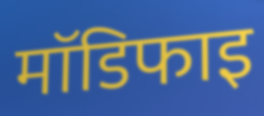
मॉडिफाइ